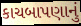
કાચબાપણાનું